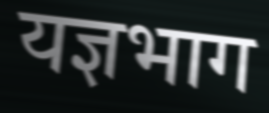
यज्ञभाग